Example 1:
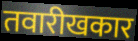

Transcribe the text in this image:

तवारीखकार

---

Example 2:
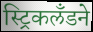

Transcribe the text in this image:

स्ट्रिकलँडने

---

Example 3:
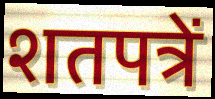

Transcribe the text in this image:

शतपत्रें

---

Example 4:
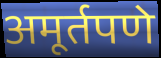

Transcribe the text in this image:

अमूर्तपणे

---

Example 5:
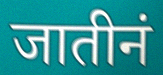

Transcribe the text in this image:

जातीनं